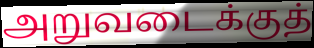
அறுவடைக்குத்